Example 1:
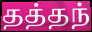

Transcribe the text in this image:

தத்தந்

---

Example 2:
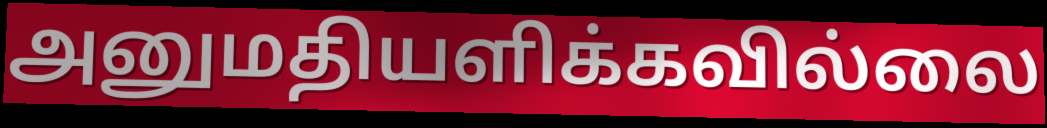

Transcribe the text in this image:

அனுமதியளிக்கவில்லை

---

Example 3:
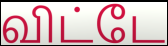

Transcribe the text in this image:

விட்டே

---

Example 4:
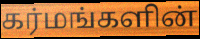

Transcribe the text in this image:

கர்மங்களின்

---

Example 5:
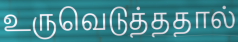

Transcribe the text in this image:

உருவெடுத்ததால்